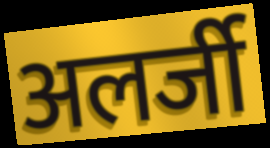
अलर्जी